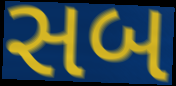
સબ